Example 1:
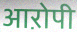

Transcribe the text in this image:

आऱोपी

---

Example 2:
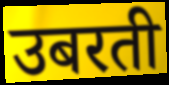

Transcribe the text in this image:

उबरती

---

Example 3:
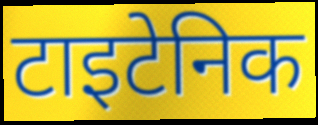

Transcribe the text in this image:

टाइटेनिक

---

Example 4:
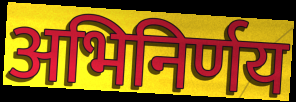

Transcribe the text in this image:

अभिनिर्णय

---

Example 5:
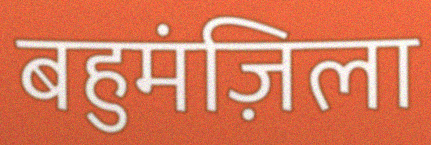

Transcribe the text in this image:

बहुमंज़िला